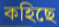
কহিছে